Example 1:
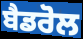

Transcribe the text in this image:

ਬੈਡਰੋਲ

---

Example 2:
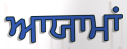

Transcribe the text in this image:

ਆਯਾਮਾਂ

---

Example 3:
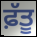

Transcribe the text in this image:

ਫ਼ੱਤੂ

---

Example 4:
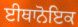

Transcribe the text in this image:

ਈਥਾਨੋਇਕ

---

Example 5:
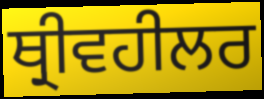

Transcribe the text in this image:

ਥ੍ਰੀਵਹੀਲਰ